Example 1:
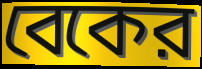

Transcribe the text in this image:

বেকের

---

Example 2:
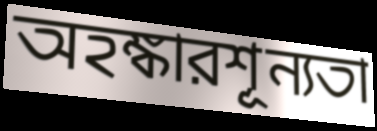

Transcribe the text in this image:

অহঙ্কারশূন্যতা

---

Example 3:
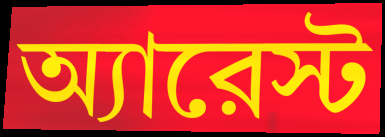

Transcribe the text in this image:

অ্যারেস্ট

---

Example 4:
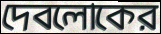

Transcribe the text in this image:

দেবলোকের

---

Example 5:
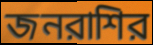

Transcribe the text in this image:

জনরাশির